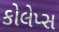
કોલેપ્સ